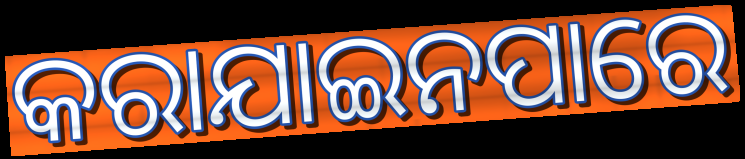
କରାଯାଇନପାରେ